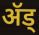
ॲड्